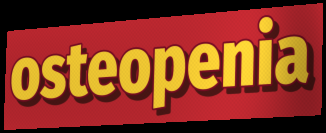
osteopenia